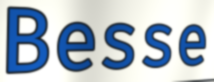
Besse